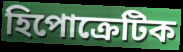
হিপোক্রেটিক